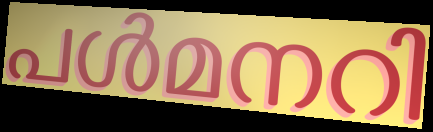
പൾമനറി